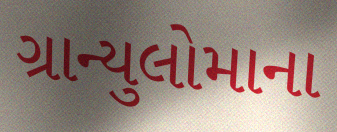
ગ્રાન્યુલોમાના